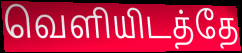
வெளியிடத்தே